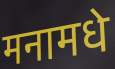
मनामधे